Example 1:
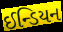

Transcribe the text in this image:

ઈન્ડિયન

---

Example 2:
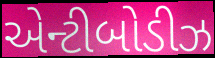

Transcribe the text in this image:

એન્ટીબોડીઝ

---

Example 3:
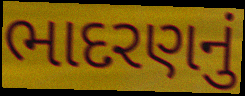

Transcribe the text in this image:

ભાદરણનું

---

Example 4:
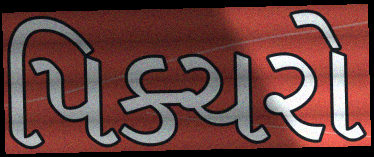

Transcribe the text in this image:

પિક્ચરો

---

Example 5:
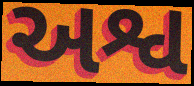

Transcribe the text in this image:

અશ્વ